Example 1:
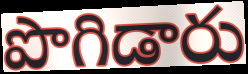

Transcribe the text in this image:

పొగిడారు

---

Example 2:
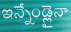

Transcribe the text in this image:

ఇన్నేండ్లైనా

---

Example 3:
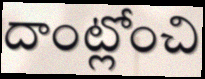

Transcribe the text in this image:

దాంట్లోంచి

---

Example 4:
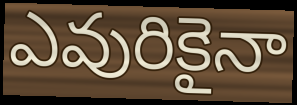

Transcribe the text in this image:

ఎవురికైనా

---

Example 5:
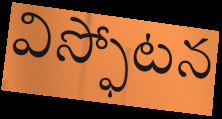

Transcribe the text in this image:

విస్ఫోటన